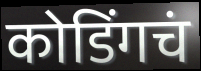
कोडिंगचं